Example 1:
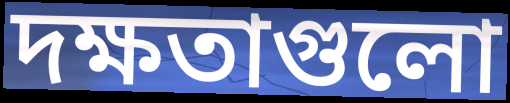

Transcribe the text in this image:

দক্ষতাগুলো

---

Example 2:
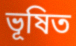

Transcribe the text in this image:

ভূষিত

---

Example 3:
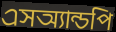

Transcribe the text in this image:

এসঅ্যান্ডপি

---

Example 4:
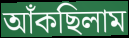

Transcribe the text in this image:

আঁকছিলাম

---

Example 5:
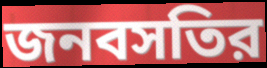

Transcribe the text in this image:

জনবসতির